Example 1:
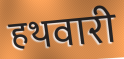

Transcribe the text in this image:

हथवारी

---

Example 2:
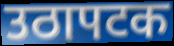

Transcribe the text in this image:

उठापटक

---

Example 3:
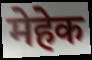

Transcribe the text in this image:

मेहेक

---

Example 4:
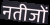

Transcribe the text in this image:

नतीजों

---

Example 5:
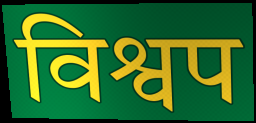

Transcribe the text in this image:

विश्वप